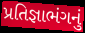
પ્રતિજ્ઞાભંગનું